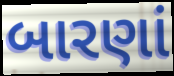
બારણાં